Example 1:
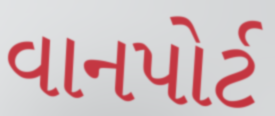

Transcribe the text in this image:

વાનપોર્ટ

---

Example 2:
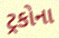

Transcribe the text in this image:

ટ્રકોના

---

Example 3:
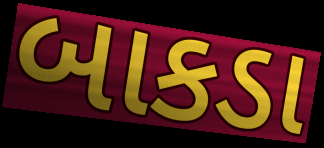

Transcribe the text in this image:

બાકડા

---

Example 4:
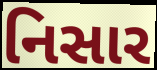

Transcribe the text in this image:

નિસાર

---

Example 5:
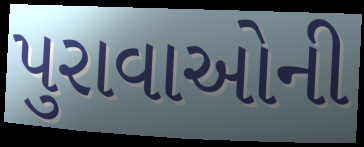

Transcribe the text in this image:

પુરાવાઓની